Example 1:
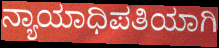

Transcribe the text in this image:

ನ್ಯಾಯಾಧಿಪತಿಯಾಗಿ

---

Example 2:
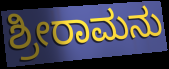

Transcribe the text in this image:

ಶ್ರೀರಾಮನು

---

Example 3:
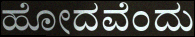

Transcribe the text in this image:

ಹೋದವೆಂದು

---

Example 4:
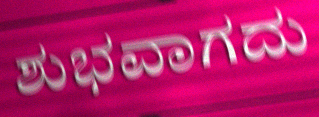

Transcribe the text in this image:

ಶುಭವಾಗದು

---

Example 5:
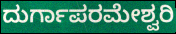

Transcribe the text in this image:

ದುರ್ಗಾಪರಮೇಶ್ವರಿ